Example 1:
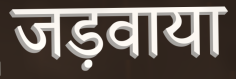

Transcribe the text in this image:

जड़वाया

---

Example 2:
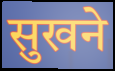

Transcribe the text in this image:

सुखने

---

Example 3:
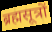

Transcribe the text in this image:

ब्रह्मसूत्रों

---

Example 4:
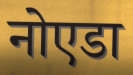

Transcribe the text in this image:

नोएडा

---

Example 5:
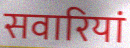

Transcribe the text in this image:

सवारियां